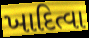
ખાદિત્વા